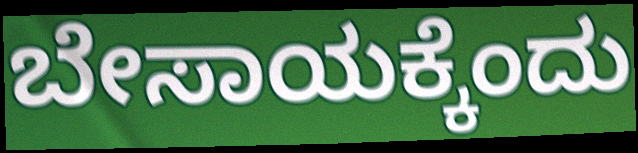
ಬೇಸಾಯಕ್ಕೆಂದು